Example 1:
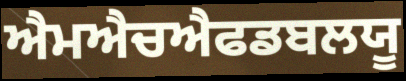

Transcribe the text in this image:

ਐਮਐਚਐਫਡਬਲਯੂ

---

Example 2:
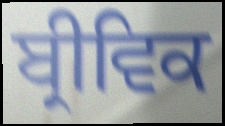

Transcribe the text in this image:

ਬ੍ਰੀਵਿਕ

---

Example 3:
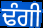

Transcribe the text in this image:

ਢੰਗੀ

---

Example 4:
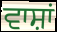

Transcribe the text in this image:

ਵਾਸ਼ਾਂ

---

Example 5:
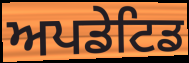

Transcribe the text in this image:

ਅਪਡੇਟਿਡ